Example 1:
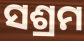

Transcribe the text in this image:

ସଶ୍ରମ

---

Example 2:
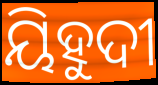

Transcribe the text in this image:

ୟିହୁଦୀ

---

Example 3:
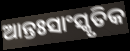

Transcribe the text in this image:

ଆନ୍ତଃସାଂସ୍କୃତିକ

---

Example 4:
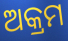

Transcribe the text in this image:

ଅକ୍ରମ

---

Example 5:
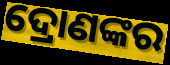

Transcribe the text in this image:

ଦ୍ରୋଣଙ୍କର